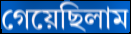
গেয়েছিলাম